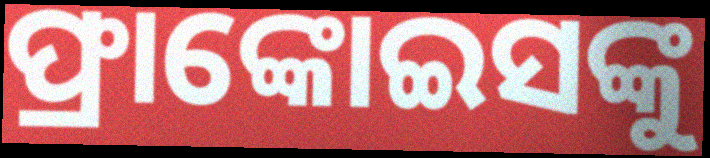
ଫ୍ରାଙ୍କୋଇସଙ୍କୁ